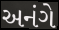
અનંગે